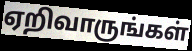
ஏறிவாருங்கள்